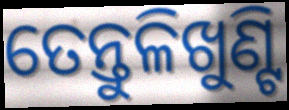
ତେନ୍ତୁଳିଖୁଣ୍ଟି